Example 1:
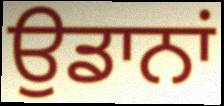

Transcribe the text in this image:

ਉਡਾਨਾਂ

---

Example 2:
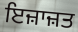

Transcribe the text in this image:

ਇਜ਼ਾਜ਼ਤ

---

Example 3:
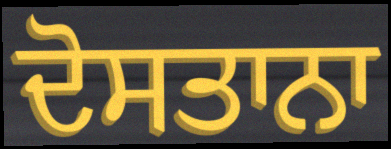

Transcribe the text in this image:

ਦੋਸਤਾਨਾ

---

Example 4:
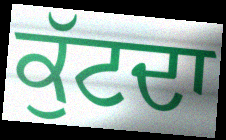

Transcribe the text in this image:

ਕੁੱਟਦਾ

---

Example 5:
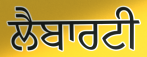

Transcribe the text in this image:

ਲੈਬਾਰਟੀ